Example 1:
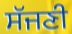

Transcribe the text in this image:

ਸੱਜਣੀ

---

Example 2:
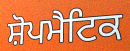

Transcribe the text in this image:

ਸ਼ੋਪਮੈਟਿਕ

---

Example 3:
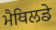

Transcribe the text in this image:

ਮੈਥਿਲਡੇ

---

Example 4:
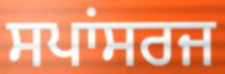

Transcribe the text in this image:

ਸਪਾਂਸਰਜ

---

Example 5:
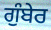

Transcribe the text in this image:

ਗੁੰਬੇਰ